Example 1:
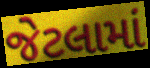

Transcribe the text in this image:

જેટલામાં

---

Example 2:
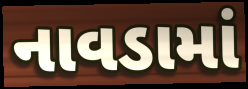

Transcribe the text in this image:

નાવડામાં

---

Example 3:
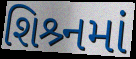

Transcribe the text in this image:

શિશ્ર્નમાં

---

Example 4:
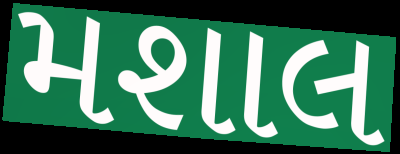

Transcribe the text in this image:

મશાલ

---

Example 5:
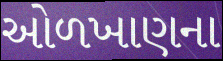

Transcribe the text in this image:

ઓળખાણના